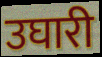
उघारी